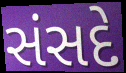
સંસદે